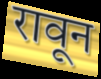
रावून